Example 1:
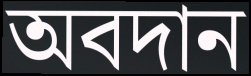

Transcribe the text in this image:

অবদান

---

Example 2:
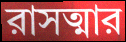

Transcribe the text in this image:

রাসত্মার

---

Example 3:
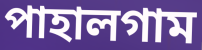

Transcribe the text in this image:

পাহালগাম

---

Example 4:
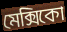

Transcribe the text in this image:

মেক্সিকো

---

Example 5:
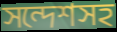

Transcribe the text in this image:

সন্দেশসহ